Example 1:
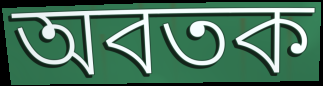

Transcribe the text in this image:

অবতক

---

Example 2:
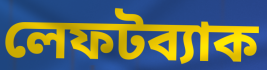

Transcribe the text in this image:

লেফটব্যাক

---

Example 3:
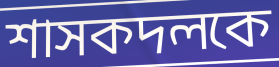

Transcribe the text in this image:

শাসকদলকে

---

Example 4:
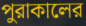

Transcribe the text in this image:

পুরাকালের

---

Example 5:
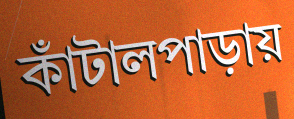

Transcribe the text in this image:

কাঁটালপাড়ায়